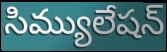
సిమ్యులేషన్